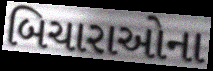
બિચારાઓના